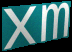
xm